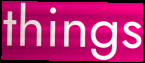
things